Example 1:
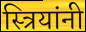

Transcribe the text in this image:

स्त्रियांनी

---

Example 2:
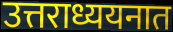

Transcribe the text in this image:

उत्तराध्ययनात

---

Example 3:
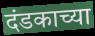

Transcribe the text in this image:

दंडकाच्या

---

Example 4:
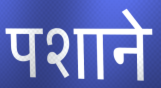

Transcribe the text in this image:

पशाने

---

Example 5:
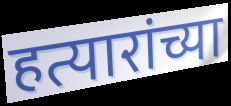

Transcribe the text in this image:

हत्यारांच्या